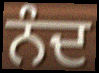
ਨੰਦ